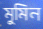
মুমিন